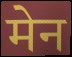
मेन